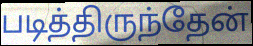
படித்திருந்தேன்